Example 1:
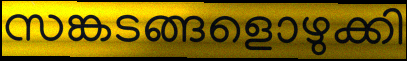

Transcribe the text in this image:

സങ്കടങ്ങളൊഴുക്കി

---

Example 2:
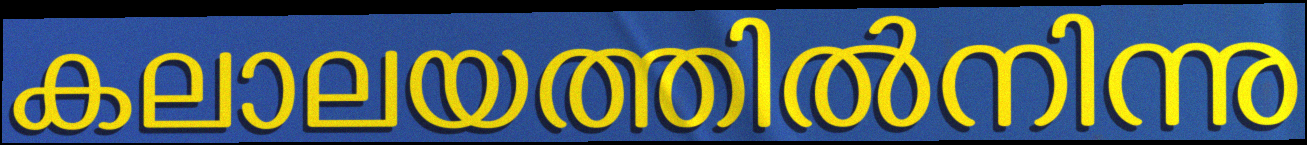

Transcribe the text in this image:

കലാലയത്തിൽനിന്നു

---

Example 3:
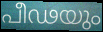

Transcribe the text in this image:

പീഢയും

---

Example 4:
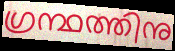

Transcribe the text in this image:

ഗ്രന്ഥത്തിനു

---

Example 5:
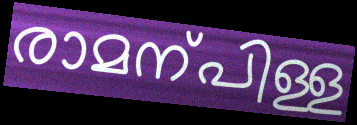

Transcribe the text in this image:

രാമന്പിള്ള